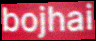
bojhai